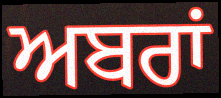
ਅਬਰਾਂ